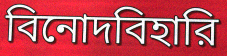
বিনোদবিহারি